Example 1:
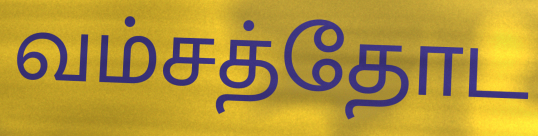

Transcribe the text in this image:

வம்சத்தோட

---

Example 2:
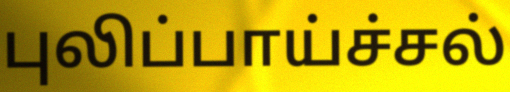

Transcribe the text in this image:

புலிப்பாய்ச்சல்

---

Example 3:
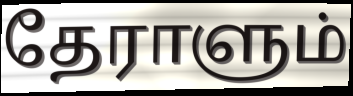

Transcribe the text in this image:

தேராளும்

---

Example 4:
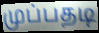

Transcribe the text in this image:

முப்பதடி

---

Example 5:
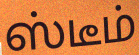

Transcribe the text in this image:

ஸ்டீம்